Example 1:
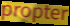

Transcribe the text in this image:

propter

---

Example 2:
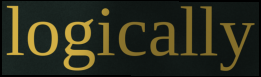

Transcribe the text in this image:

logically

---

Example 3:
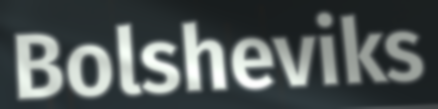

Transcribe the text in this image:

Bolsheviks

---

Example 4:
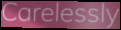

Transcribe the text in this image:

Carelessly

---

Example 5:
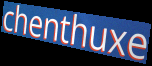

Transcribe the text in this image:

chenthuxe